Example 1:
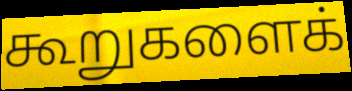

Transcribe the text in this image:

கூறுகளைக்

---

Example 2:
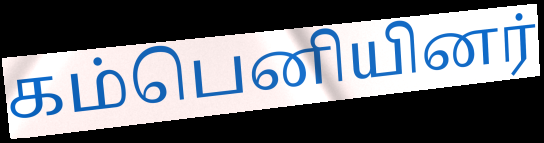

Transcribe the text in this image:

கம்பெனியினர்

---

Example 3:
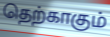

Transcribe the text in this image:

தெற்காகும்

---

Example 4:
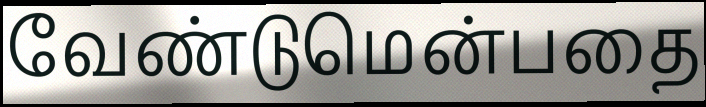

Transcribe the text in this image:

வேண்டுமென்பதை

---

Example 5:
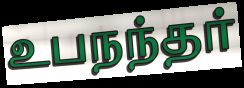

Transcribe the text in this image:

உபநந்தர்